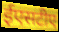
ईएसटीए